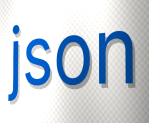
json